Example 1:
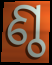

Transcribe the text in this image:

ଣ୍ଠ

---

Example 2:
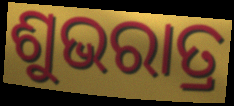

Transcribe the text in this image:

ଶୁଭରାତ୍ର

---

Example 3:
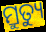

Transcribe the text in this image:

ମ୍ରୁତ୍ୟୁ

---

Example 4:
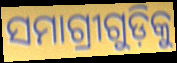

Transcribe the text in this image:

ସମାଗ୍ରୀଗୁଡ଼ିକୁ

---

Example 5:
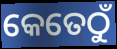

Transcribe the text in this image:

କେତେଠୁଁ